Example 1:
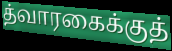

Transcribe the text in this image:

த்வாரகைக்குத்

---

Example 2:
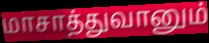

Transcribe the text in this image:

மாசாத்துவானும்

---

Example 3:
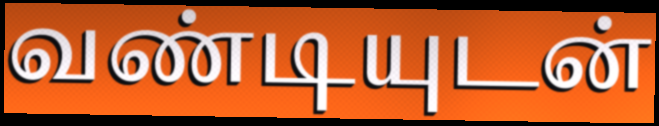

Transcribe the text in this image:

வண்டியுடன்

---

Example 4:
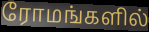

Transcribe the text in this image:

ரோமங்களில்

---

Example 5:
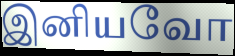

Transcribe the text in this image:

இனியவோ